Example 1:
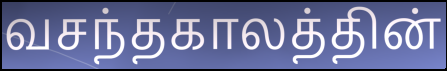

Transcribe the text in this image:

வசந்தகாலத்தின்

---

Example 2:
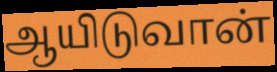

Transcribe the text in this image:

ஆயிடுவான்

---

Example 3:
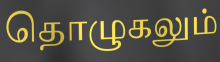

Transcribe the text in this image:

தொழுகலும்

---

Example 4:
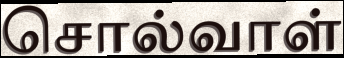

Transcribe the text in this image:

சொல்வாள்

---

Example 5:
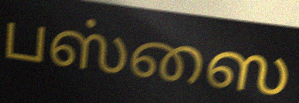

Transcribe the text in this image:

பஸ்ஸை